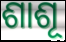
ଶାଶୂ